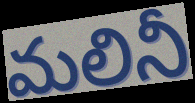
మలినీ